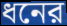
ধনের